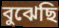
বুঝেছি